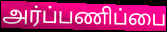
அர்ப்பணிப்பை